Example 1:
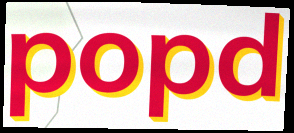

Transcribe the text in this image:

popd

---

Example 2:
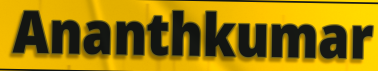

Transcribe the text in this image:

Ananthkumar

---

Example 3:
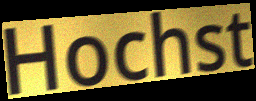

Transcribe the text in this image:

Hochst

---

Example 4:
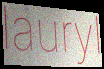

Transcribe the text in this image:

lauryl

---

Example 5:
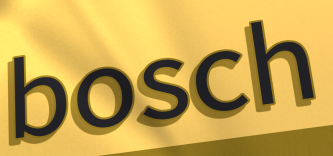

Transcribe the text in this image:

bosch